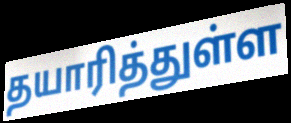
தயாரித்துள்ள